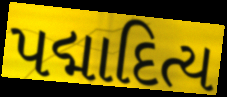
પદ્માદિત્ય